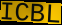
ICBL